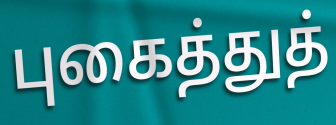
புகைத்துத்